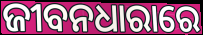
ଜୀବନଧାରାରେ